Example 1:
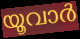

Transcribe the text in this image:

യൂവാർ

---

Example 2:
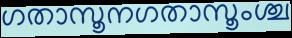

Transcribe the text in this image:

ഗതാസൂനഗതാസൂംശ്ച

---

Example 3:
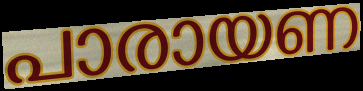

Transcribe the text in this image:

പാരായണ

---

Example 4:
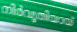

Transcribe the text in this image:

നിർവൃതിയായ്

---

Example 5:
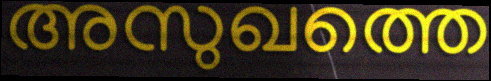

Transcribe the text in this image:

അസുഖത്തെ